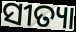
ସୀତ୍ୟା